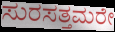
ಸುರಸತ್ತಮರೇ